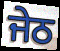
ਜੇਠ